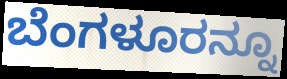
ಬೆಂಗಳೂರನ್ನೂ